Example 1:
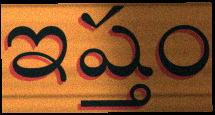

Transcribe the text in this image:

ఇష్తం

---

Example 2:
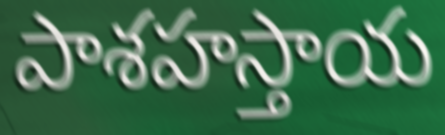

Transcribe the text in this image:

పాశహస్తాయ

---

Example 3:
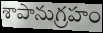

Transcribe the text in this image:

శాపానుగ్రహం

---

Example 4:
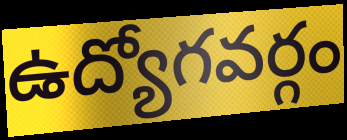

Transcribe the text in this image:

ఉద్యోగవర్గం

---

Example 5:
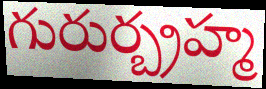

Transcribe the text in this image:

గురుర్బ్రహ్మ